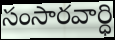
సంసారవార్ధి